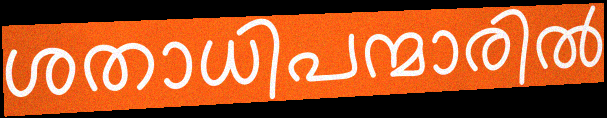
ശതാധിപന്മാരിൽ